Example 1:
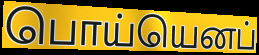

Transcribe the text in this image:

பொய்யெனப்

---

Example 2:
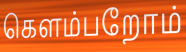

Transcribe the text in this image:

கெளம்பறோம்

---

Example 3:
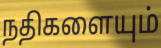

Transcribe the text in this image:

நதிகளையும்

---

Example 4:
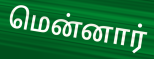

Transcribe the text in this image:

மென்னார்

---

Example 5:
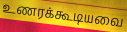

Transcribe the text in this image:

உணரக்கூடியவை